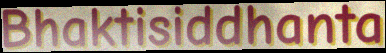
Bhaktisiddhanta